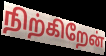
நிற்கிறேன்